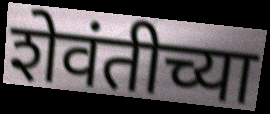
शेवंतीच्या